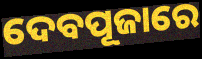
ଦେବପୂଜାରେ